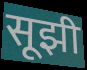
सूझी